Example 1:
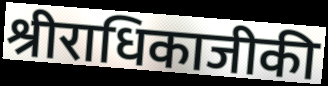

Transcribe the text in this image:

श्रीराधिकाजीकी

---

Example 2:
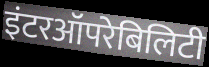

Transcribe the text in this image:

इंटरऑपरेबिलिटी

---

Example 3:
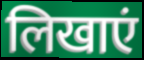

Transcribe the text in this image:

लिखाएं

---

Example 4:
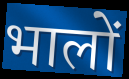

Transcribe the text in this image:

भालों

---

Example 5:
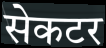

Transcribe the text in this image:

सेकटर